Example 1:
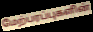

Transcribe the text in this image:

மேற்பரப்புகளின்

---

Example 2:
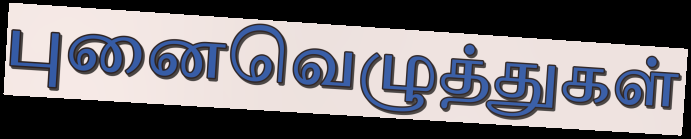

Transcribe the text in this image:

புனைவெழுத்துகள்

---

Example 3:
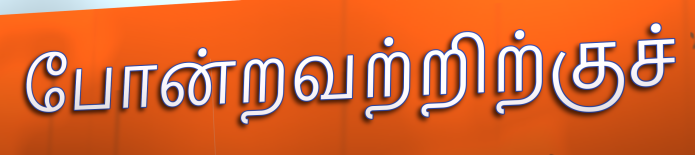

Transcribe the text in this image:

போன்றவற்றிற்குச்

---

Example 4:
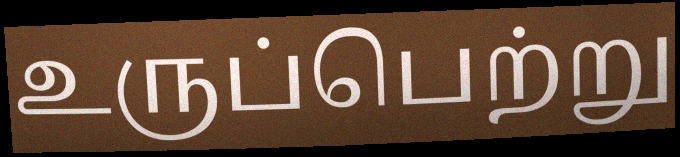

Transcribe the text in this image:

உருப்பெற்று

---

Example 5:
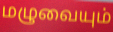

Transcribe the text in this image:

மழுவையும்